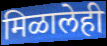
मिळालेही